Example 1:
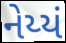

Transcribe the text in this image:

નેય્યં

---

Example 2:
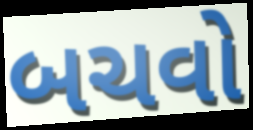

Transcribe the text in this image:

બચવો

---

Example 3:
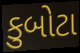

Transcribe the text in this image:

કુબોટા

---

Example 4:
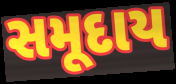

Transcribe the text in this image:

સમૂદાય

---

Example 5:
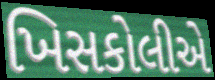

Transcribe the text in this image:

ખિસકોલીએ